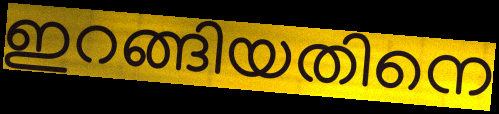
ഇറങ്ങിയതിനെ